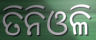
ତିନିଓଳି